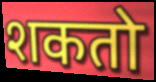
शकतो